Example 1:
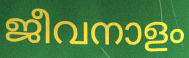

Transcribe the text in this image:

ജീവനാളം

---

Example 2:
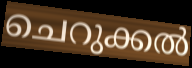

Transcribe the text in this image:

ചെറുക്കൽ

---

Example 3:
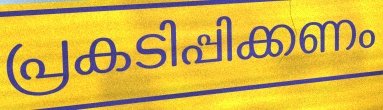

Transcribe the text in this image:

പ്രകടിപ്പിക്കണം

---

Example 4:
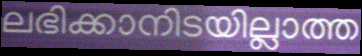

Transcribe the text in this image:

ലഭിക്കാനിടയില്ലാത്ത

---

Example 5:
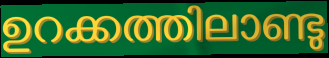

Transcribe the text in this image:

ഉറക്കത്തിലാണ്ടു